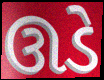
ઊડે